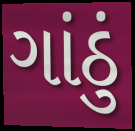
ગાંઠું